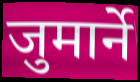
जुमार्ने